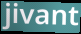
jivant